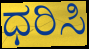
ಧರಿಸಿ